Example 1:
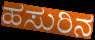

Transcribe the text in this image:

ಹಸುರಿನ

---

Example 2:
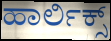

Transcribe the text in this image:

ಹಾರ್ಲಿಕ್ಸ್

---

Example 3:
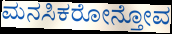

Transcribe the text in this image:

ಮನಸಿಕರೋನ್ತೋವ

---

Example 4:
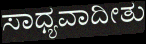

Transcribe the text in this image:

ಸಾಧ್ಯವಾದೀತು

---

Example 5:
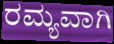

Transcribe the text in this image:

ರಮ್ಯವಾಗಿ